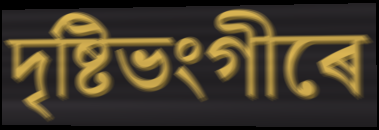
দৃষ্টিভংগীৰে